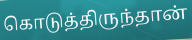
கொடுத்திருந்தான்